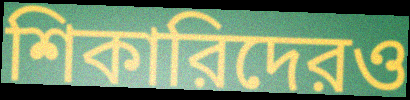
শিকারিদেরও